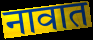
नावात